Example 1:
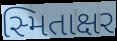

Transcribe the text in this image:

સ્મિતાક્ષર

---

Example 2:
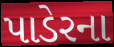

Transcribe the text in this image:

પાડેરના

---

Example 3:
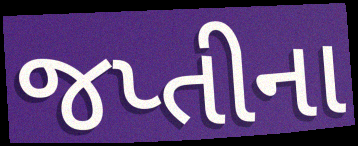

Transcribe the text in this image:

જપ્તીના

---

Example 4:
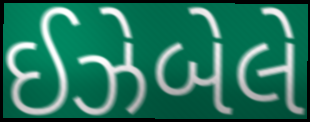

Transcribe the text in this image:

ઈઝેબેલે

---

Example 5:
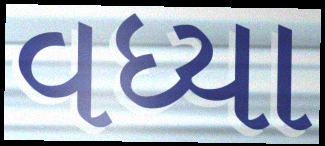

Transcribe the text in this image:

વધ્યા